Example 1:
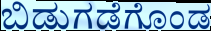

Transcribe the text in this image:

ಬಿಡುಗಡೆಗೊಂಡ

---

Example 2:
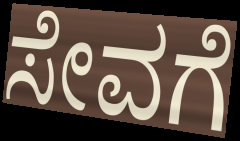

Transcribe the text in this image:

ಸೇವಗೆ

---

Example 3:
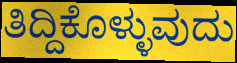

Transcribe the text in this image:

ತಿದ್ದಿಕೊಳ್ಳುವುದು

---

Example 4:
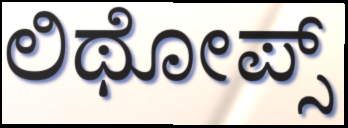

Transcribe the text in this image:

ಲಿಥೋಪ್ಸ್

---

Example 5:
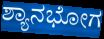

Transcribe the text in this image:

ಶ್ಯಾನಭೋಗ